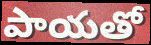
పాయతో